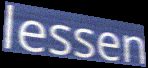
lessen